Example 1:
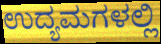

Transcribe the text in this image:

ಉದ್ಯಮಗಳಲ್ಲಿ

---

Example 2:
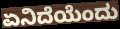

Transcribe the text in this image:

ಏನಿದೆಯೆಂದು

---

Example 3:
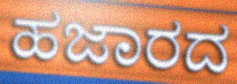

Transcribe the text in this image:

ಹಜಾರದ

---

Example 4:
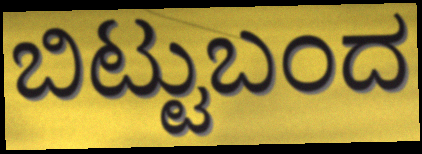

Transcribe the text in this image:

ಬಿಟ್ಟುಬಂದ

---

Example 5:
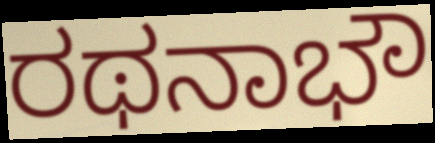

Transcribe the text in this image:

ರಥನಾಭೌ